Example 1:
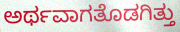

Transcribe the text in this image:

ಅರ್ಥವಾಗತೊಡಗಿತ್ತು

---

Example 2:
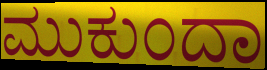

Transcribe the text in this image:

ಮುಕುಂದಾ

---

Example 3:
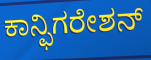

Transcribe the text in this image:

ಕಾನ್ಫಿಗರೇಶನ್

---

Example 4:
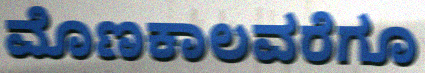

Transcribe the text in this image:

ಮೊಣಕಾಲವರೆಗೂ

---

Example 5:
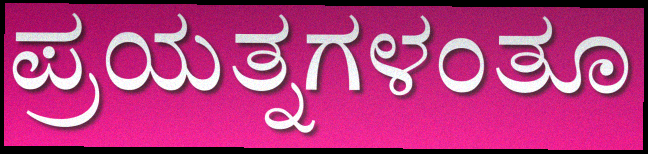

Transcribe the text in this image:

ಪ್ರಯತ್ನಗಳಂತೂ